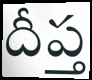
దీప్త